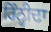
ਰਿੰਨ੍ਹੀਦਾ